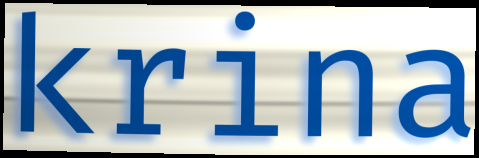
krina